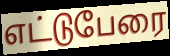
எட்டுபேரை